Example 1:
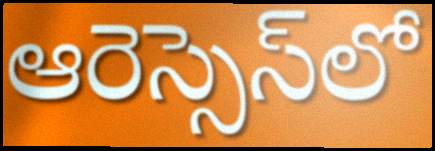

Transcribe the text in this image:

ఆరెస్సెస్‌లో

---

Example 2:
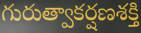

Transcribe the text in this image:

గురుత్వాకర్షణశక్తి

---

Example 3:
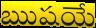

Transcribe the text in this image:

ఋషయే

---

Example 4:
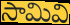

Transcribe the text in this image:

సామివి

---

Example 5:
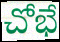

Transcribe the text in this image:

చోభే